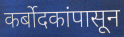
कर्बोदकांपासून